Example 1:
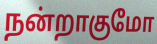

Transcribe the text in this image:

நன்றாகுமோ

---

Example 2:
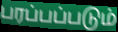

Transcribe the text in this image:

பரப்பப்படும்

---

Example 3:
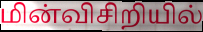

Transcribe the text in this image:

மின்விசிறியில்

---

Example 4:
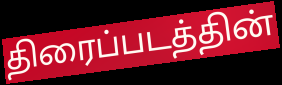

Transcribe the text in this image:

திரைப்படத்தின்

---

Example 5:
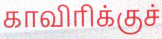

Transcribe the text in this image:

காவிரிக்குச்